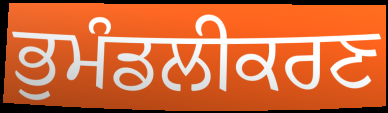
ਭੁਮੰਡਲੀਕਰਣ